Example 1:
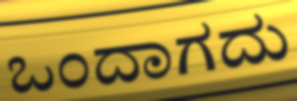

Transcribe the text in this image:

ಒಂದಾಗದು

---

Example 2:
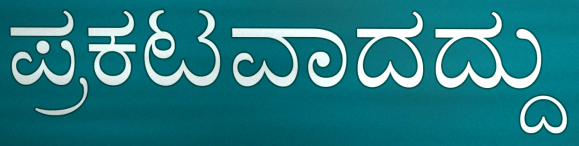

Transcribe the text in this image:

ಪ್ರಕಟವಾದದ್ದು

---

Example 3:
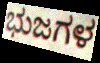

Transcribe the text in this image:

ಭುಜಗಳ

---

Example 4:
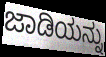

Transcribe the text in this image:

ಜಾಡಿಯನ್ನು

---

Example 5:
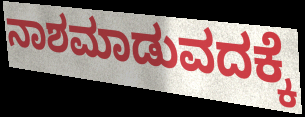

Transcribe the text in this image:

ನಾಶಮಾಡುವದಕ್ಕೆ